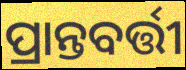
ପ୍ରାନ୍ତବର୍ତ୍ତୀ